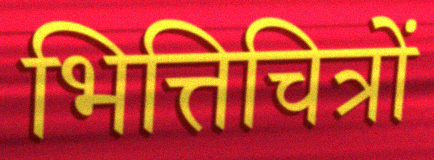
भित्तिचित्रों